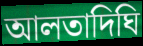
আলতাদিঘি